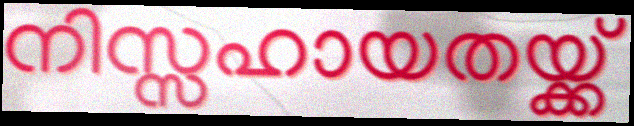
നിസ്സഹായതയ്ക്ക്